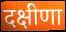
दक्षीणा